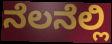
ನೆಲನೆಲ್ಲಿ